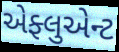
એફ્લુએન્ટ